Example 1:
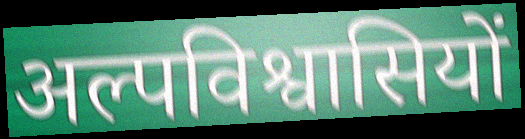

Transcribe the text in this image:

अल्पविश्वासियों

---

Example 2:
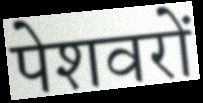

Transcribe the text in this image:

पेशवरों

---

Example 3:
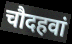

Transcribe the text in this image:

चौदहवां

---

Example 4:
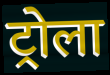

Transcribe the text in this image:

ट्रोला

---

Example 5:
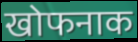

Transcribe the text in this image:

खोफनाक